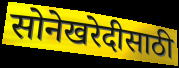
सोनेखरेदीसाठी